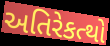
અતિરેકત્થો